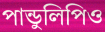
পান্ডুলিপিও